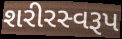
શરીરસ્વરૂપ